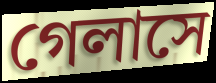
গেলাসে